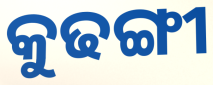
କୁଢଙ୍ଗୀ